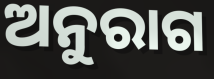
ଅନୁରାଗ